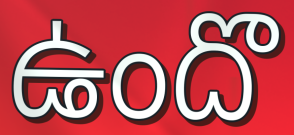
ఉందొ